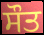
ਸੌਤ